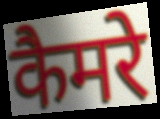
कैमरे